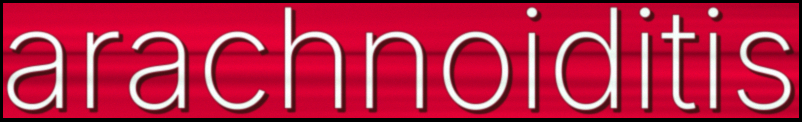
arachnoiditis